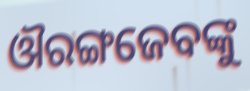
ଔରଙ୍ଗଜେବଙ୍କୁ